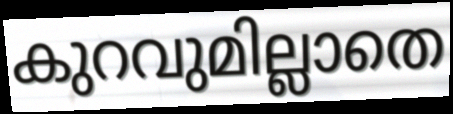
കുറവുമില്ലാതെ